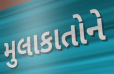
મુલાકાતોને